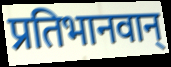
प्रतिभानवान्